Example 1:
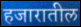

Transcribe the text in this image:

हजारातील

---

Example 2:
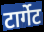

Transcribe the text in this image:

टार्गेट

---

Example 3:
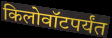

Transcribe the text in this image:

किलोवॉटपर्यंत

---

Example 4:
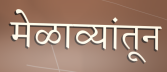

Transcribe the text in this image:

मेळाव्यांतून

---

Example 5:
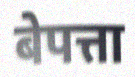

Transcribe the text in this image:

बेपत्ता